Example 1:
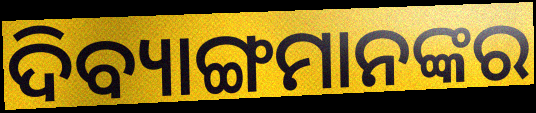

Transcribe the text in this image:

ଦିବ୍ୟାଙ୍ଗମାନଙ୍କର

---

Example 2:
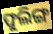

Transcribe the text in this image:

ଫୁଲିଙ୍ଗ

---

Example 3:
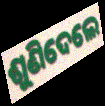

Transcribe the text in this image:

ଶୁଣିଦେଲେ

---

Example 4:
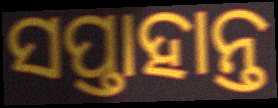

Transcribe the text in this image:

ସପ୍ତାହାନ୍ତ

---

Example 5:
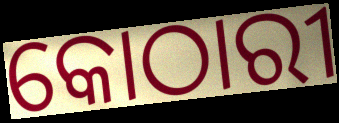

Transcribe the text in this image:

କୋଠାରୀ